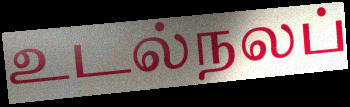
உடல்நலப்